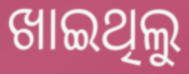
ଖାଇଥିଲୁ